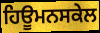
ਹਿਊਮਨਸਕੇਲ